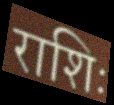
राशिः